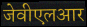
जेवीएलआर